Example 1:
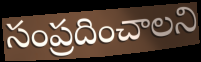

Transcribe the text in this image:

సంప్రదించాలని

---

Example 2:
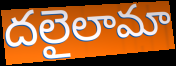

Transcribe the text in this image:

దలైలామా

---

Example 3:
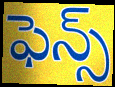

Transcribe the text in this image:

ఫెన్స్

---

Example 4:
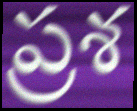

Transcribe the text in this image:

ప్రశ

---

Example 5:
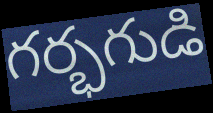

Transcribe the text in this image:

గర్భగుడి